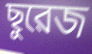
ছুৱেজ